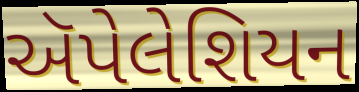
ઍપેલેશિયન